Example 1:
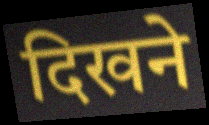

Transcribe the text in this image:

दिखने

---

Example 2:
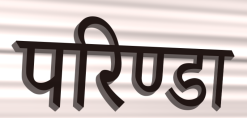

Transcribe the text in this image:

परिण्डा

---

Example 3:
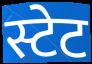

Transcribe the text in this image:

स्टेट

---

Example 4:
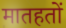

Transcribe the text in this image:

मातहतों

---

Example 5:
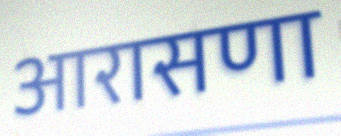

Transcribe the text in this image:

आरासणा